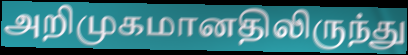
அறிமுகமானதிலிருந்து